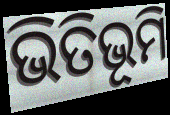
ଭିତିଭୂମି